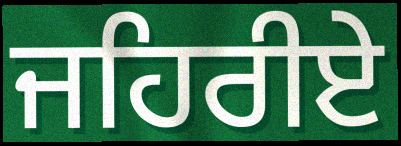
ਜਹਿਰੀਏ